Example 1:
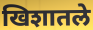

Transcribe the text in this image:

खिशातले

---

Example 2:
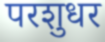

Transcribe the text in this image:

परशुधर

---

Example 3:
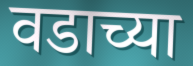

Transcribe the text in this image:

वडाच्या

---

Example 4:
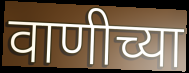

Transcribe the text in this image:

वाणीच्या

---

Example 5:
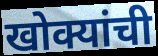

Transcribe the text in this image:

खोक्यांची